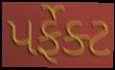
પર્ફેક્ટ